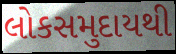
લોકસમુદાયથી